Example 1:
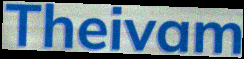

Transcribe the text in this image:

Theivam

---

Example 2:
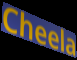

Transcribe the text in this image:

Cheela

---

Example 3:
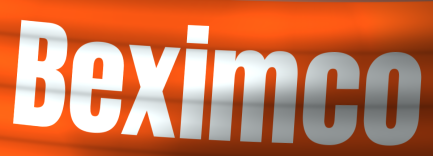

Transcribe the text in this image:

Beximco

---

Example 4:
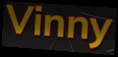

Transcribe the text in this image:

Vinny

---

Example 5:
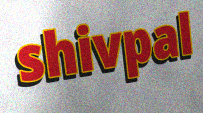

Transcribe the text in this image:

shivpal